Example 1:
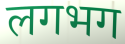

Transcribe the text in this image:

लगभग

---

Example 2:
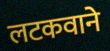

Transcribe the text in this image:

लटकवाने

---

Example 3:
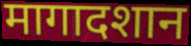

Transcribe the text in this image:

मागादशान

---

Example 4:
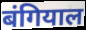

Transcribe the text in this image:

बंगियाल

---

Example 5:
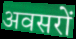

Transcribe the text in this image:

अवसरों